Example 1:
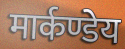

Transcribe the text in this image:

मार्कण्डेय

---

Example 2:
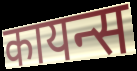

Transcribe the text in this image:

कायन्स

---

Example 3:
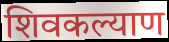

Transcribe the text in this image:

शिवकल्याण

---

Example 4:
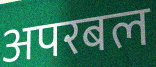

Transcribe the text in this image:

अपरबल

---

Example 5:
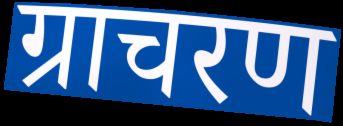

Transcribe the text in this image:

ग्राचरण